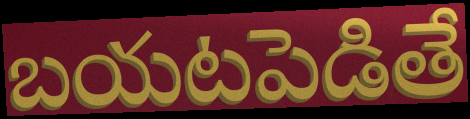
బయటపెడితే